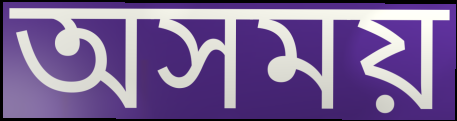
অসময়